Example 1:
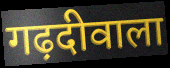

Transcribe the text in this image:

गढ़दीवाला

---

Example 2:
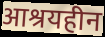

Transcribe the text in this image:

आश्रयहीन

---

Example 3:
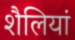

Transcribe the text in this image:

शैलियां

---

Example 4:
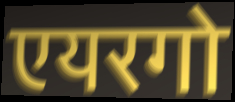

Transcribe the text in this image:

एयरगो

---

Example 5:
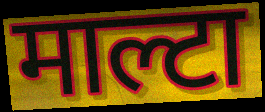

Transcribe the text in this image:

माल्टा